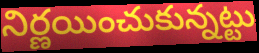
నిర్ణయించుకున్నట్టు